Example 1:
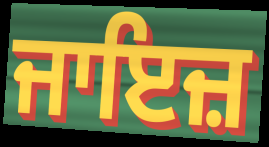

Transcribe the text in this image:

ਜਾਇਜ਼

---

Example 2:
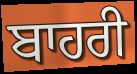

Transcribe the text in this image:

ਬਾਹਰੀ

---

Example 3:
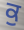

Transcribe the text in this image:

ਕੁ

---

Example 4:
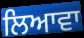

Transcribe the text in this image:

ਲਿਆਵਾ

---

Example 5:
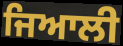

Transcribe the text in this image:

ਜਿਆਲੀ